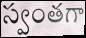
స్వంతగా